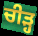
ਚੀੜ੍ਹ